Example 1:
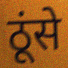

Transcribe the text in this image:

ठूंसे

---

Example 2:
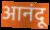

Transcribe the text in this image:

आनंदू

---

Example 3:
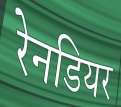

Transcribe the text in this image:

रेनडियर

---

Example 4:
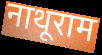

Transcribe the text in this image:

नाथूराम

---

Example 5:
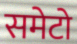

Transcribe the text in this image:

समेटो